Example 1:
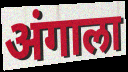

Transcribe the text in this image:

अंगाला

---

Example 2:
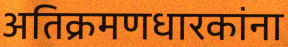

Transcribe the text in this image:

अतिक्रमणधारकांना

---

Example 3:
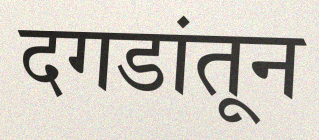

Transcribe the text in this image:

दगडांतून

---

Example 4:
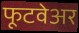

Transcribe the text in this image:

फूटवेअर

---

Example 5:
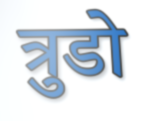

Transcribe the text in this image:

त्रुडो